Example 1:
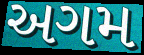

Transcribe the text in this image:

અગમ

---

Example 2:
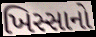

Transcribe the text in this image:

ખિસ્સાનો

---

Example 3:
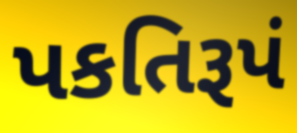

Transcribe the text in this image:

પકતિરૂપં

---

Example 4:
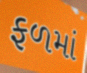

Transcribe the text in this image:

ફળમાં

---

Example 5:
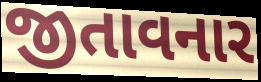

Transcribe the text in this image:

જીતાવનાર